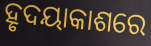
ହୃଦୟାକାଶରେ